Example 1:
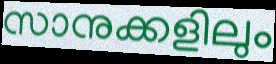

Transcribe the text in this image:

സാനുക്കളിലും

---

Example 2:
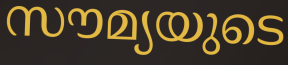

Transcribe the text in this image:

സൗമ്യയുടെ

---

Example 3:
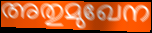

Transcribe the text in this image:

അതുമുഖേന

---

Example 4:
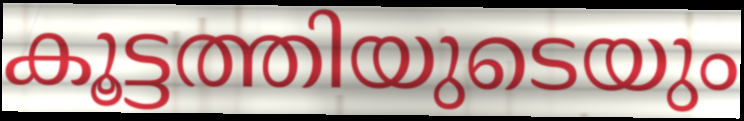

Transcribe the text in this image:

കൂട്ടത്തിയുടെയും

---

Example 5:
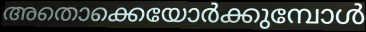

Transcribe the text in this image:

അതൊക്കെയോർക്കുമ്പോൾ